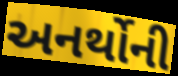
અનર્થોની